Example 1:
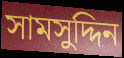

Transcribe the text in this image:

সামসুদ্দিন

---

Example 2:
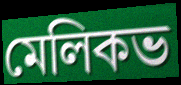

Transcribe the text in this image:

মেলিকভ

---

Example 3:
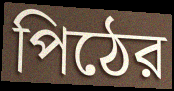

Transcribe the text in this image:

পিঠের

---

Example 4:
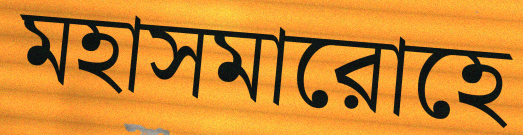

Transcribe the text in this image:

মহাসমারোহে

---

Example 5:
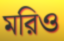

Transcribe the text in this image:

মরিও